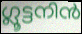
ഗ്ലൂട്ടനിൻ